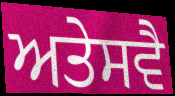
ਅਤੇਸਵੈ